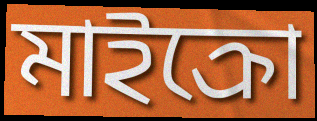
মাইক্রো